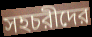
সহচরীদের